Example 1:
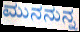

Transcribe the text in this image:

ಮುನನುನ್ನ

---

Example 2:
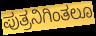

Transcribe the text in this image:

ಪುತ್ರನಿಗಿಂತಲೂ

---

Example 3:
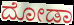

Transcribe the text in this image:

ದೋಡಾ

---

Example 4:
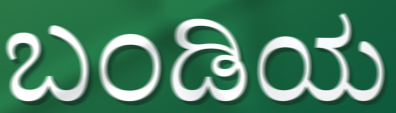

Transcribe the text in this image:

ಬಂಡಿಯ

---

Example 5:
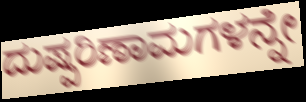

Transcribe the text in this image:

ದುಷ್ಪರಿಣಾಮಗಳನ್ನೇ